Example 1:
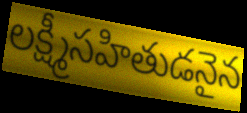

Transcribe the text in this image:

లక్ష్మీసహితుడనైన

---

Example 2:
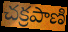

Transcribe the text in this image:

చక్రపాణి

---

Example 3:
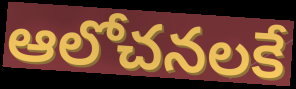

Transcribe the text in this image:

ఆలోచనలకే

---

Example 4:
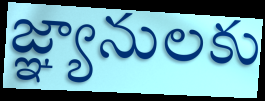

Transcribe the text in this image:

జ్ఞ్యానులకు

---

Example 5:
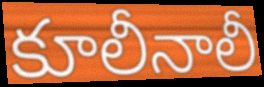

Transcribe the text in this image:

కూలీనాలీ